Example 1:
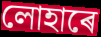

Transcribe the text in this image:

লোহাৰে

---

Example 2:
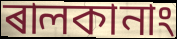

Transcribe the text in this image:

ৰালকানাং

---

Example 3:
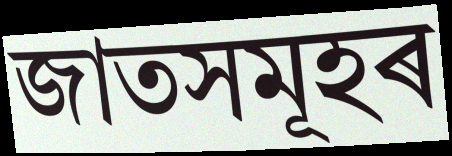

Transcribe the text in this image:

জাতসমূহৰ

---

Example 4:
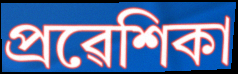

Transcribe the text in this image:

প্ৰৱেশিকা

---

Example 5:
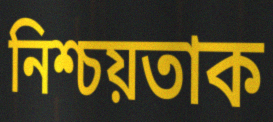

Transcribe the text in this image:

নিশ্চয়তাক